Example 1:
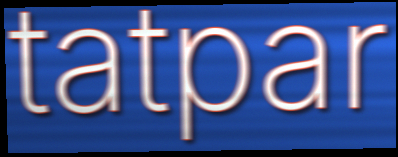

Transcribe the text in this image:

tatpar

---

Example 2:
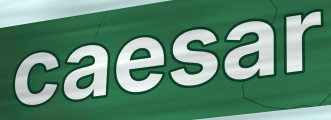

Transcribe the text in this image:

caesar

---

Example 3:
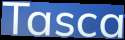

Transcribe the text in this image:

Tasca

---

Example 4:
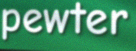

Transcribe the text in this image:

pewter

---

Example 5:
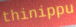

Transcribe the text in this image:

thinippu